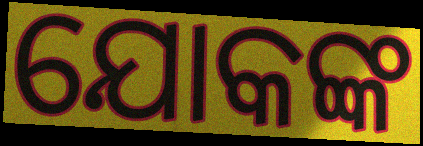
ଯୋକଙ୍କ